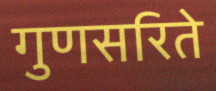
गुणसरिते